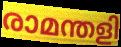
രാമന്തളി